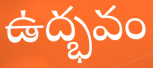
ఉద్భవం